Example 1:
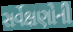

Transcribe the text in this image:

સર્વેક્ષણોની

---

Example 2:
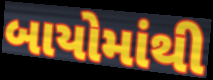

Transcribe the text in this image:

બાયોમાંથી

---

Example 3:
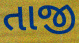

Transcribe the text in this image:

તાજી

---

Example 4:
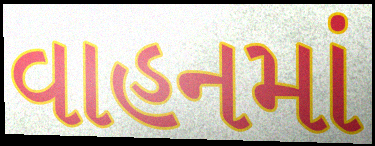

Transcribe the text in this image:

વાહનમાં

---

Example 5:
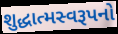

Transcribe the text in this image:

શુદ્ધાત્મસ્વરૂપનો